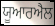
ਯੂਆਰਐਲ